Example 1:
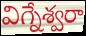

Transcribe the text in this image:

విగ్నేశ్వరా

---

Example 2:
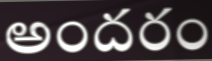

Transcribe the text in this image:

అందరం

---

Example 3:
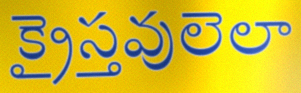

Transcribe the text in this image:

క్రైస్తవులెలా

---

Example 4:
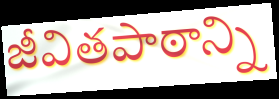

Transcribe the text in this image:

జీవితపాఠాన్ని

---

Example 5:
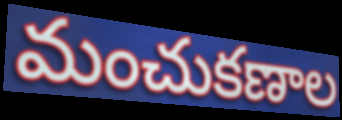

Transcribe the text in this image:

మంచుకణాల